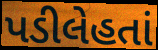
પડીલેહતાં